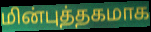
மின்புத்தகமாக